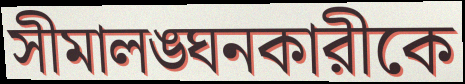
সীমালঙ্ঘনকারীকে